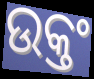
ଉକ୍ତଂ